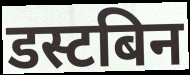
डस्टबिन